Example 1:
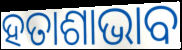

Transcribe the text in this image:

ହତାଶାଭାବ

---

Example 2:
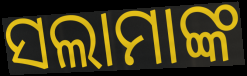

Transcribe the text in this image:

ସଲାମାଙ୍କ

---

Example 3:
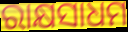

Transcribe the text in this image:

ରାକ୍ଷସାଧମ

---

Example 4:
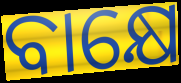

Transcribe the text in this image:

ବାକ୍ଷେ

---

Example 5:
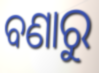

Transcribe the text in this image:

ବଣାରୁ